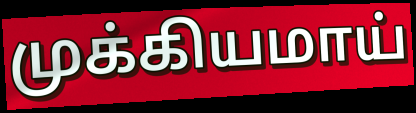
முக்கியமாய்